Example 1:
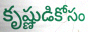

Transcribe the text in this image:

కృష్ణుడికోసం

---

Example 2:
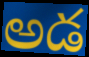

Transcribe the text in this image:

అడ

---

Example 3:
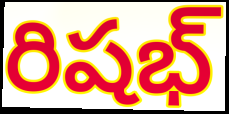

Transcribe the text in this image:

రిషభ్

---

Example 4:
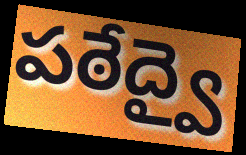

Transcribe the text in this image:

పఠేద్వై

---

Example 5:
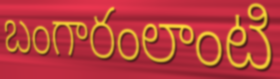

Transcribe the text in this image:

బంగారంలాంటి